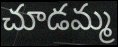
చూడమ్మ